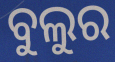
ବୁଲୁର